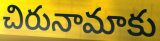
చిరునామాకు